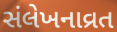
સંલેખનાવ્રત